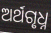
ଅର୍ଥଗୃଧ୍ନ